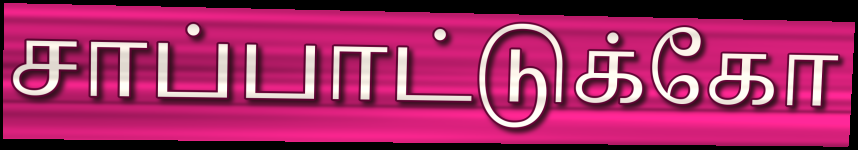
சாப்பாட்டுக்கோ